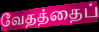
வேதத்தைப்